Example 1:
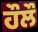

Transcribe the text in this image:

ਹੌਲੌ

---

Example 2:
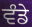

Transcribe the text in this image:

ਵੰਡੇ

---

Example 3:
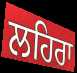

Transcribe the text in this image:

ਲਹਿਰਾ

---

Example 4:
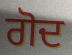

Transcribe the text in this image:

ਗੋਦ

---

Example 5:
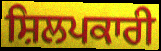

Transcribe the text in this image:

ਸ਼ਿਲਪਕਾਰੀ